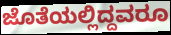
ಜೊತೆಯಲ್ಲಿದ್ದವರೂ